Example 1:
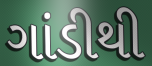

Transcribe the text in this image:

ગાંડીથી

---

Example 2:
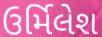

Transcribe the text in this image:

ઉર્મિલેશ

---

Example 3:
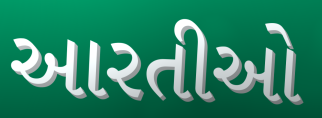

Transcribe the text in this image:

આરતીઓ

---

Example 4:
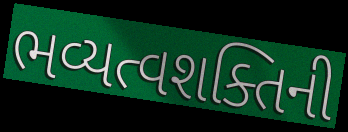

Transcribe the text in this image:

ભવ્યત્વશક્તિની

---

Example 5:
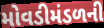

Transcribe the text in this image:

મોવડીમંડળની